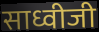
साध्वीजी